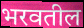
भरवतील